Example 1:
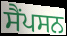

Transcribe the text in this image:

ਸੈਂਪਸਨ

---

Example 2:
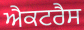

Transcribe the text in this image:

ਐਕਟਰੈਸ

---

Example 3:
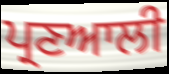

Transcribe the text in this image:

ਪ੍ਰਣਆਲੀ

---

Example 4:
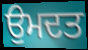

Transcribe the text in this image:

ਉਮਦਤ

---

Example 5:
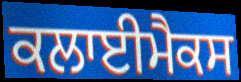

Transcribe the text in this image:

ਕਲਾਈਮੈਕਸ